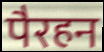
पैरहन